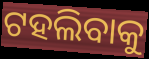
ଟହଲିବାକୁ